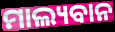
ମାଲ୍ୟବାନ